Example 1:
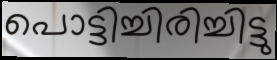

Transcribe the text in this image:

പൊട്ടിച്ചിരിച്ചിട്ടു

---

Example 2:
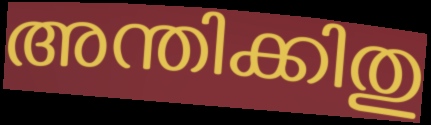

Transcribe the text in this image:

അന്തിക്കിതു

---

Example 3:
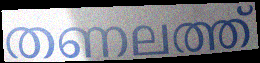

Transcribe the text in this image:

തണലത്ത്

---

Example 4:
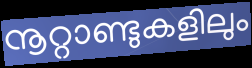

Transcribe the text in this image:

നൂറ്റാണ്ടുകളിലും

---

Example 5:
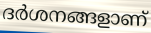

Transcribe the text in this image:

ദർശനങ്ങളാണ്